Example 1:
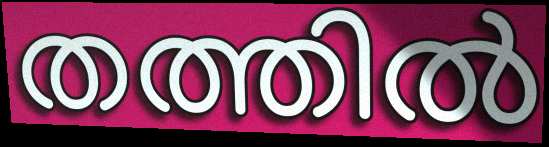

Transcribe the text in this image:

തത്തിൽ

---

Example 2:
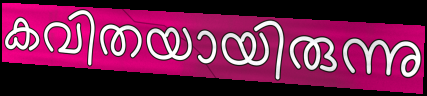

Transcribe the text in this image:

കവിതയായിരുന്നു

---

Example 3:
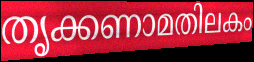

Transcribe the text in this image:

തൃക്കണാമതിലകം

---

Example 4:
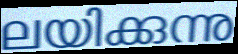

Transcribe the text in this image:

ലയിക്കുന്നു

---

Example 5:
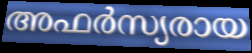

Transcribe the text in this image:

അഫർസ്യരായ